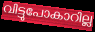
വിട്ടുപോകാറില്ല